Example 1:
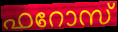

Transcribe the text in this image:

ഫറോസ്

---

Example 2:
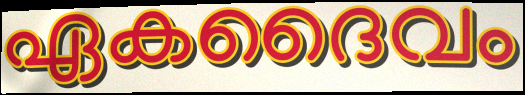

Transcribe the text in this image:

ഏകദൈവം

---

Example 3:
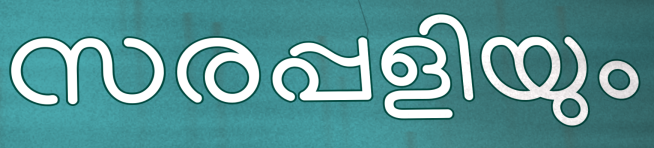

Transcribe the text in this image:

സരപ്പളിയും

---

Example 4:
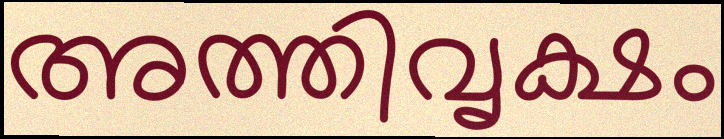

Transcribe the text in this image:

അത്തിവൃക്ഷം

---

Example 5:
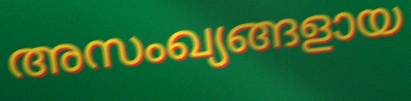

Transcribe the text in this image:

അസംഖ്യങ്ങളായ